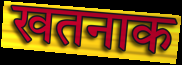
खतनाक